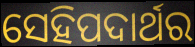
ସେହିପଦାର୍ଥର